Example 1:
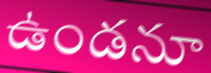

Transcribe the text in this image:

ఉండనూ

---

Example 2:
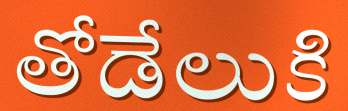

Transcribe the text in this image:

తోడేలుకి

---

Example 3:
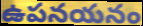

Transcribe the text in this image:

ఉపనయనం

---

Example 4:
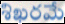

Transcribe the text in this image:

శిఖరమే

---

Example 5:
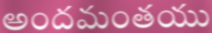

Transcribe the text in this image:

అందమంతయు